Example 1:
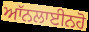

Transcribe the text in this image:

ਆੱਨਲਾਈਨਹੋ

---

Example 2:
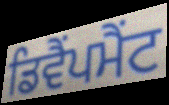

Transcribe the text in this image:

ਡਿਵੈਂਪਮੈਂਟ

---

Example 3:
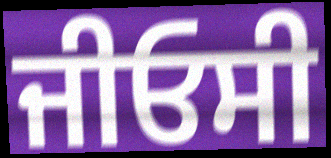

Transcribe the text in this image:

ਜੀਓਸੀ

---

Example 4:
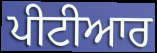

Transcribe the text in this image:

ਪੀਟੀਆਰ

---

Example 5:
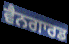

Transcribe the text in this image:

ਵੈਨਗਾਰਡ